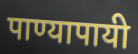
पाण्यापायी